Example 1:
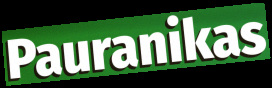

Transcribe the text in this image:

Pauranikas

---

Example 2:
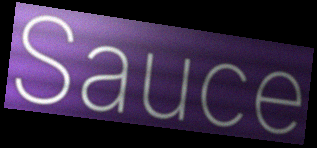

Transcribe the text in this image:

Sauce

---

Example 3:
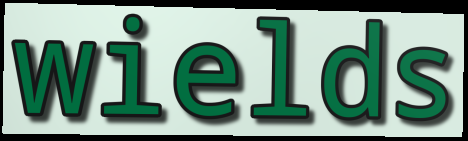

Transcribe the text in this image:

wields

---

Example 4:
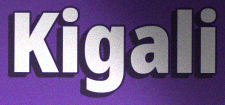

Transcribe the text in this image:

Kigali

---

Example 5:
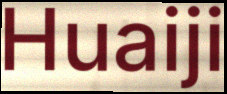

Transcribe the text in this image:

Huaiji